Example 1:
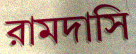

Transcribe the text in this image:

রামদাসি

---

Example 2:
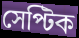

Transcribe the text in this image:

সেপ্টিক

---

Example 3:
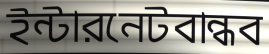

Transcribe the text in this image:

ইন্টারনেটবান্ধব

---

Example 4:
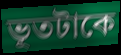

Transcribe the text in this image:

ভূতটাকে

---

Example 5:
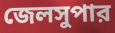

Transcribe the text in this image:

জেলসুপার